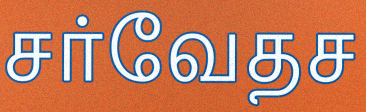
சர்வேதச